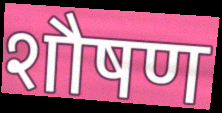
शौषण